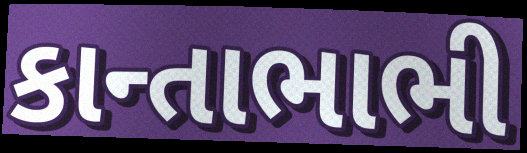
કાન્તાભાભી